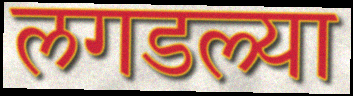
लगडल्या